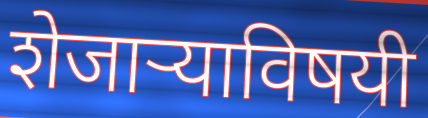
शेजाऱ्याविषयी